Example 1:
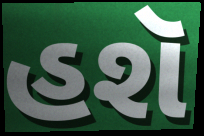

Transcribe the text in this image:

હશૅ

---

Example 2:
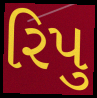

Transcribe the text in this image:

રિપુ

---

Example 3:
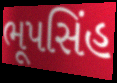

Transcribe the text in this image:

ભૂપસિંહ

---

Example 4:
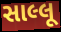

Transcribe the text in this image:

સાલ્લૂ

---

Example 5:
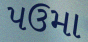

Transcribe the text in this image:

પઉમા